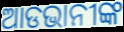
ଆଡଭାନୀଙ୍କ